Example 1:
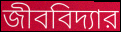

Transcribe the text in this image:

জীববিদ্যার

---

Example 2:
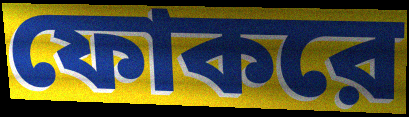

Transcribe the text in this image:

ফোকরে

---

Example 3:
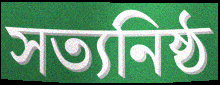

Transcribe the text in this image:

সত্যনিষ্ঠ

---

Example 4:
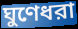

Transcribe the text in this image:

ঘুণেধরা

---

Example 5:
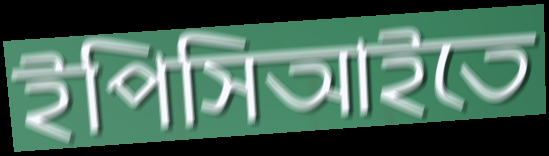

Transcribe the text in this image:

ইপিসিআইতে